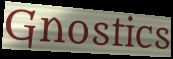
Gnostics